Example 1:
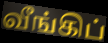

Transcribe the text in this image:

வீங்கிப்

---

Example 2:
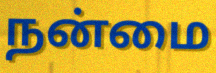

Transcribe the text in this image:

நன்மை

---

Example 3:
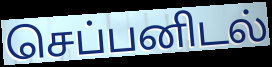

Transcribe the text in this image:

செப்பனிடல்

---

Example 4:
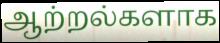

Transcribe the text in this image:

ஆற்றல்களாக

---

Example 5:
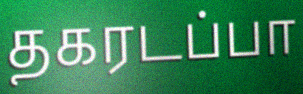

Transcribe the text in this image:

தகரடப்பா